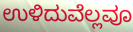
ಉಳಿದುವೆಲ್ಲವೂ